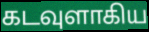
கடவுளாகிய